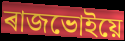
ৰাজভোইয়ে